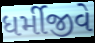
ધર્મીજીવે